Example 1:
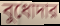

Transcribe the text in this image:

বুধোদার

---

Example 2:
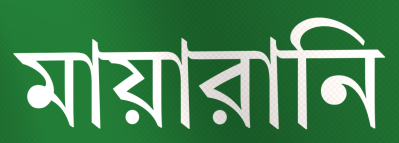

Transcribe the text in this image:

মায়ারানি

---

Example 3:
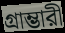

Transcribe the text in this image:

গ্রাম্ভারী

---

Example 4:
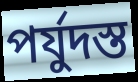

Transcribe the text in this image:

পর্যুদস্ত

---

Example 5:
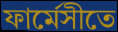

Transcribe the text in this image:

ফার্মেসীতে